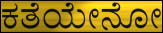
ಕತೆಯೇನೋ